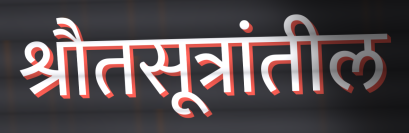
श्रौतसूत्रांतील